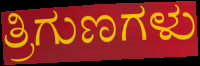
ತ್ರಿಗುಣಗಳು